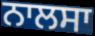
ਨਾਲਸਾ